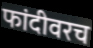
फांदीवरच